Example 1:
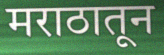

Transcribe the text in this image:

मराठातून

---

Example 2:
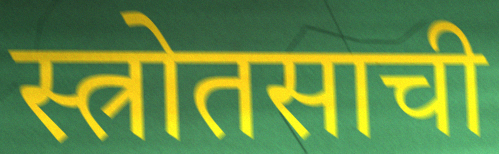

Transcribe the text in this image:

स्त्रोतसाची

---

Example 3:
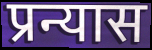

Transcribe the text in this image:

प्रन्यास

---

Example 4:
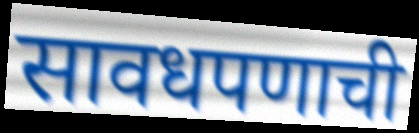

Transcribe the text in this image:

सावधपणाची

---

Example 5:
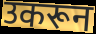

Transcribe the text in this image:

उकरून